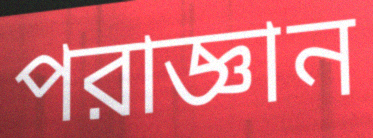
পরাজ্ঞান